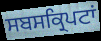
ਸਬਸਕ੍ਰਿਪਟਾਂ